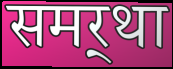
समर्था